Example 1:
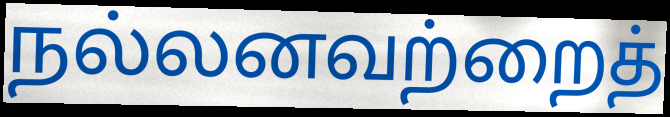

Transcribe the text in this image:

நல்லனவற்றைத்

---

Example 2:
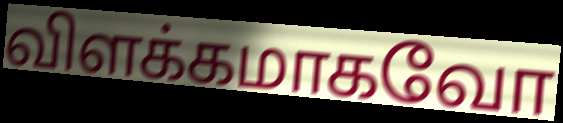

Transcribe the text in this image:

விளக்கமாகவோ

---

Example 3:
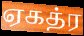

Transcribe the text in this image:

ஏகத்ர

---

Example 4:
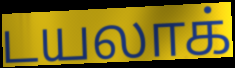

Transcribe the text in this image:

டயலாக்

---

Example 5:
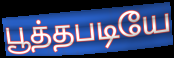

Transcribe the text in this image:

பூத்தபடியே